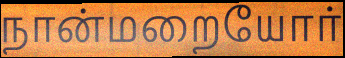
நான்மறையோர்